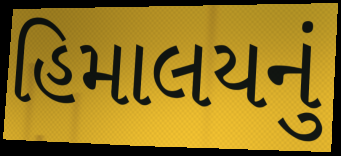
હિમાલયનું